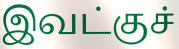
இவட்குச்